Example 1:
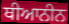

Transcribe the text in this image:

ਥੀਆਨੀਨ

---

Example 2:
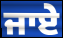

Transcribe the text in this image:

ਜਾਏੇ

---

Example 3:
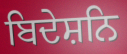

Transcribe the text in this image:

ਬਿਦੇਸ਼ਨਿ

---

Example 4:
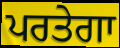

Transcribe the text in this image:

ਪਰਤੇਗਾ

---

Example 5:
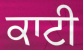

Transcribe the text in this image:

ਕਾਟੀ